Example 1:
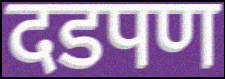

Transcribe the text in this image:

दडपण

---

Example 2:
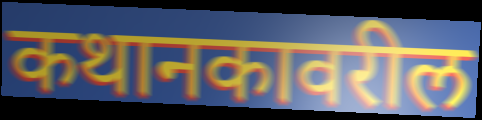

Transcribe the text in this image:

कथानकावरील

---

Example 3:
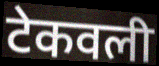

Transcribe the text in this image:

टेकवली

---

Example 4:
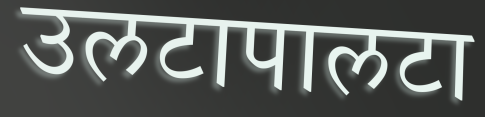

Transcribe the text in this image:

उलटापालटा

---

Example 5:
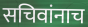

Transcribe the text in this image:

सचिवांनाच